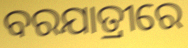
ବରଯାତ୍ରୀରେ